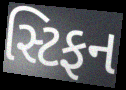
સ્ટિફન